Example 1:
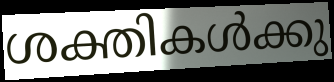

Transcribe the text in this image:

ശക്തികൾക്കു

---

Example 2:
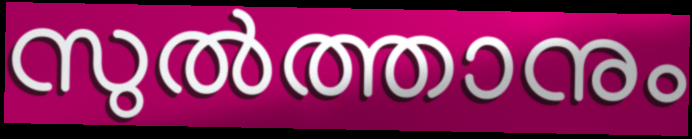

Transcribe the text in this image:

സുൽത്താനും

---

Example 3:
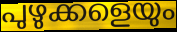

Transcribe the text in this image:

പുഴുക്കളെയും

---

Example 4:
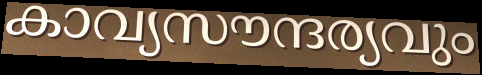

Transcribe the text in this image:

കാവ്യസൗന്ദര്യവും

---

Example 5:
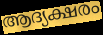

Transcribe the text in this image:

ആദ്യക്ഷരം